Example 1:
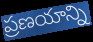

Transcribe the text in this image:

ప్రణయాన్ని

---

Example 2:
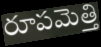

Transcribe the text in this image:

రూపమెత్తి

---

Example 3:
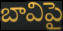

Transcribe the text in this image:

బావిపై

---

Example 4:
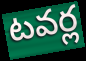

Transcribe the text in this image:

టవర్ల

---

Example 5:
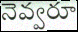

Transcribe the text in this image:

నెవ్వరూ